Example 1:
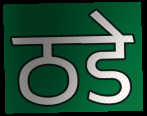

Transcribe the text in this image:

ठडे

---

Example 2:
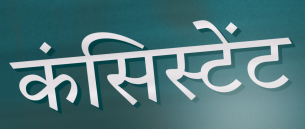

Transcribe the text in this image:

कंसिस्टेंट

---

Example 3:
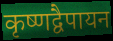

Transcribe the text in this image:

कृष्णद्वैपायन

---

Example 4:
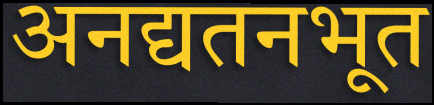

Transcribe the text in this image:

अनद्यतनभूत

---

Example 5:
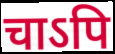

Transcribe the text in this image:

चाऽपि